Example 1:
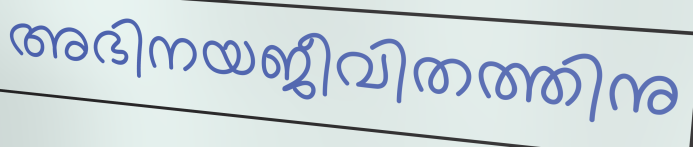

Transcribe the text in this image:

അഭിനയജീവിതത്തിനു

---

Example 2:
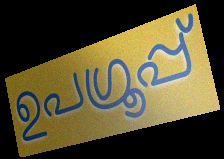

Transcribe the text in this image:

ഉപഗ്രൂപ്പ്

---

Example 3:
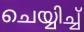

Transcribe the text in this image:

ചെയ്യിച്ച്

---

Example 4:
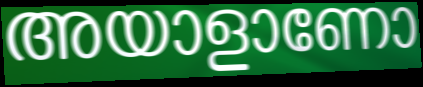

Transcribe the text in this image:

അയാളാണോ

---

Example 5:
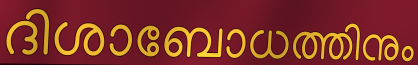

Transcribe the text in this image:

ദിശാബോധത്തിനും